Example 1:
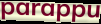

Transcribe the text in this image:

parappu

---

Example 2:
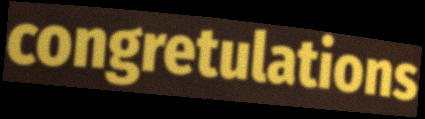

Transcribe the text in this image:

congretulations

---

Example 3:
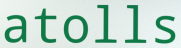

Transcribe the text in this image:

atolls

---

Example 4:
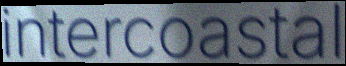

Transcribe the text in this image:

intercoastal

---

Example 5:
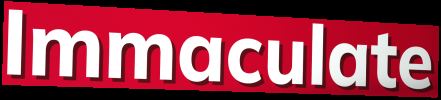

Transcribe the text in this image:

Immaculate